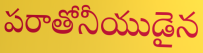
పరాతోనీయుడైన